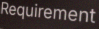
Requirement